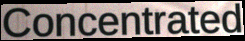
Concentrated